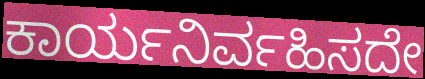
ಕಾರ್ಯನಿರ್ವಹಿಸದೇ